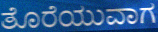
ತೊರೆಯುವಾಗ